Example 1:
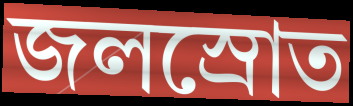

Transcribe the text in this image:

জলস্রোত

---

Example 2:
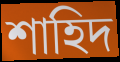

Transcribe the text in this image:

শাহিদ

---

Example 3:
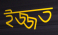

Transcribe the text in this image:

ইজ্জত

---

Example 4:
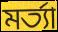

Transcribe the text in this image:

মর্ত্যা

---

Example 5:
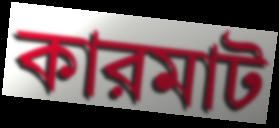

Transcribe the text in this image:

কারমাট